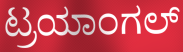
ಟ್ರಯಾಂಗಲ್